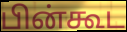
பின்கூட